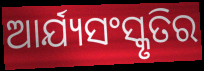
ଆର୍ଯ୍ୟସଂସ୍କୃତିର